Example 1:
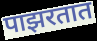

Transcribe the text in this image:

पाझरतात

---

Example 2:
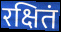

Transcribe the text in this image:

रक्षितं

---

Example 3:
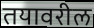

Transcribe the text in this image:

तयावरील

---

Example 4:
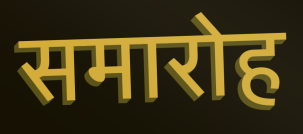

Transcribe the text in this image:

समारोह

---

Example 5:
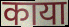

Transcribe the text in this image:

काया